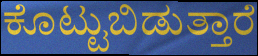
ಕೊಟ್ಟುಬಿಡುತ್ತಾರೆ